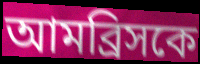
আমব্রিসকে